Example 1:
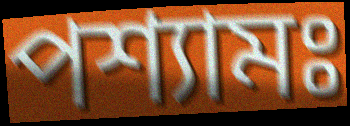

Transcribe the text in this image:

পশ্যামঃ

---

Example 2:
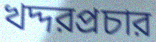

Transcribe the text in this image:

খদ্দরপ্রচার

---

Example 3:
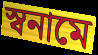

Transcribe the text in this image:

স্বনামে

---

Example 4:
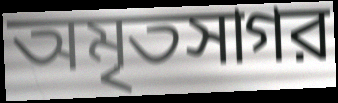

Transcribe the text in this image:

অমৃতসাগর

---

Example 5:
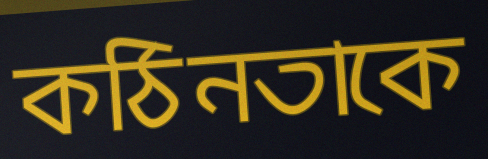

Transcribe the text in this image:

কঠিনতাকে